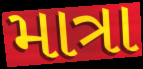
માત્રા